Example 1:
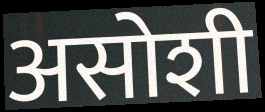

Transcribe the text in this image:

असोशी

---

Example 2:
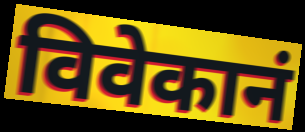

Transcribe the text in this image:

विवेकानं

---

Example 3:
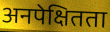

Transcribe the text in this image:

अनपेक्षितता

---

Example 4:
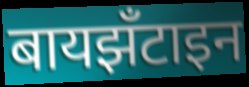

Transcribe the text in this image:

बायझँटाइन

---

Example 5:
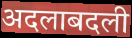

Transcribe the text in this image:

अदलाबदली